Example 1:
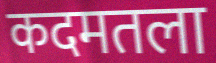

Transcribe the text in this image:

कदमतला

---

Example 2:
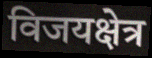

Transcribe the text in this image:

विजयक्षेत्र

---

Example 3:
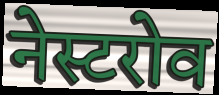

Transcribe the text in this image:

नेस्टरोव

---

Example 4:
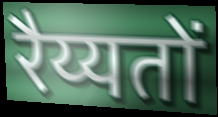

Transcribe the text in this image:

रैय्यतों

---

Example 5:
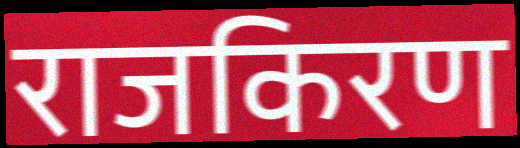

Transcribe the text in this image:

राजकिरण